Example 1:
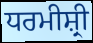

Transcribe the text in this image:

ਧਰਮੀਸ਼੍ਰੀ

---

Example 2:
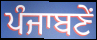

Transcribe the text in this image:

ਪੰਜਾਬਣੇਂ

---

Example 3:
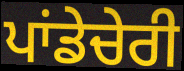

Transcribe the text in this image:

ਪਾਂਡੇਚੇਰੀ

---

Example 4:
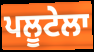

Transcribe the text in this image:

ਪਲੂਟੇਲਾ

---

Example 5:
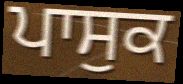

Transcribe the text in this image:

ਪਾਸੁਕ